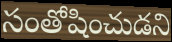
సంతోషించుడని